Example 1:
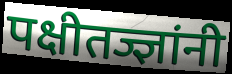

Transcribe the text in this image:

पक्षीतज्ज्ञांनी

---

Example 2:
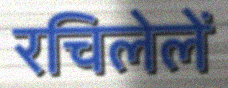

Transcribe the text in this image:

रचिलेलें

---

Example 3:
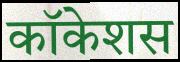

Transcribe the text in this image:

कॉकेशस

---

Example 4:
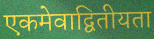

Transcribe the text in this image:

एकमेवाद्वितीयता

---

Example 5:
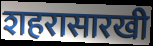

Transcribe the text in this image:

शहरासारखी